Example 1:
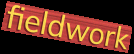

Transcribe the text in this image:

fieldwork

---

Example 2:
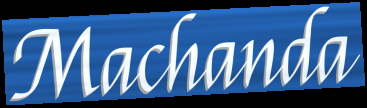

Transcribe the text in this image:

Machanda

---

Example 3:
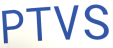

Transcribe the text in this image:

PTVS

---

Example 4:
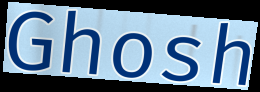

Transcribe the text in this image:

Ghosh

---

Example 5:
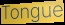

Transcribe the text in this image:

Tongue